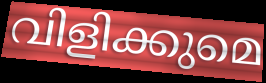
വിളിക്കുമെ